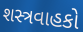
શસ્ત્રવાહકો